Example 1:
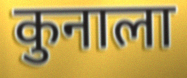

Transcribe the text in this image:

कुनाला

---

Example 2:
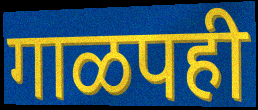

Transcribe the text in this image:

गाळपही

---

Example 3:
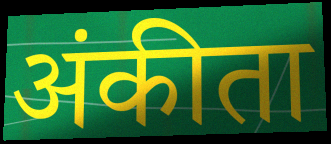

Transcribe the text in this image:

अंकीता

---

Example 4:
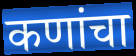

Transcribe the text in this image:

कणांचा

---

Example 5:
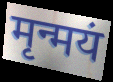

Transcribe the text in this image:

मृन्मयं